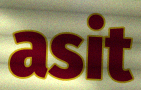
asit